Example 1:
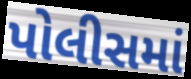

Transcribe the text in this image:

પોલીસમાં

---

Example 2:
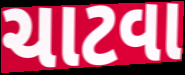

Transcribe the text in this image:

ચાટવા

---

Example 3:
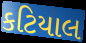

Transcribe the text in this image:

કટિયાલ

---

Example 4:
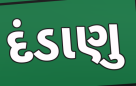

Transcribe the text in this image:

દંડાણુ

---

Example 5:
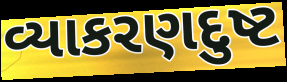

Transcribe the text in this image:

વ્યાકરણદુષ્ટ